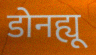
डोनह्यू